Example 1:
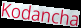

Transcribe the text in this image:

Kodancha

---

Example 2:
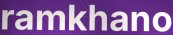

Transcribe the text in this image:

ramkhano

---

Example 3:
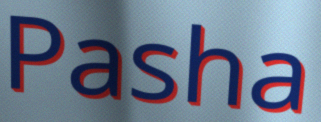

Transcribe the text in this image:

Pasha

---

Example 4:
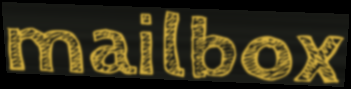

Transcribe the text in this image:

mailbox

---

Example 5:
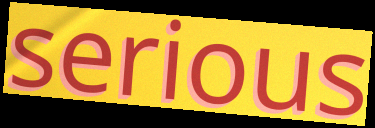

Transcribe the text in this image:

serious